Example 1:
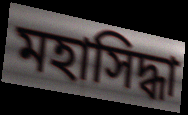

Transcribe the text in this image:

মহাসিদ্ধা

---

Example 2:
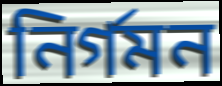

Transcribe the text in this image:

নিৰ্গমন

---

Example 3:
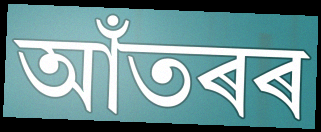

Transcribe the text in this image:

আঁতৰৰ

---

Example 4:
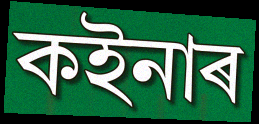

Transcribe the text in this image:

কইনাৰ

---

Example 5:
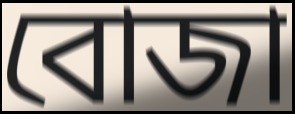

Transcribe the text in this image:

বোজা